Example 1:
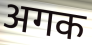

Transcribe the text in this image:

अगक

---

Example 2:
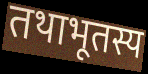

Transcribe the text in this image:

तथाभूतस्य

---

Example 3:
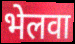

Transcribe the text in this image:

भेलवा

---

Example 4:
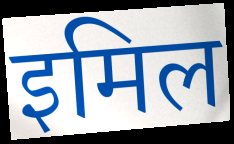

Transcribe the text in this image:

इमिल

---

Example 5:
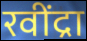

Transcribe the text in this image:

रवींद्रा